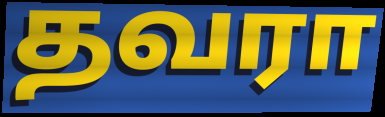
தவரா